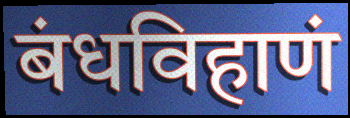
बंधविहाणं